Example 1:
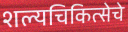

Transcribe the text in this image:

शल्यचिकित्सेचे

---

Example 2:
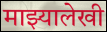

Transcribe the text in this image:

माझ्यालेखी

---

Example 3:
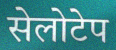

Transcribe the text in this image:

सेलोटेप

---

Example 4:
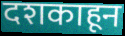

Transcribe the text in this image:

दशकाहून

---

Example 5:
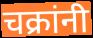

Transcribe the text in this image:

चक्रांनी